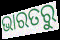
ଭାରତରୁ